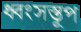
ধ্বংসস্তূপ